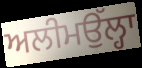
ਅਲੀਮਉੱਲ੍ਹਾ